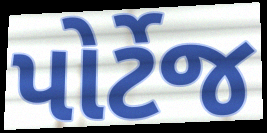
પોર્ટેજ